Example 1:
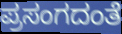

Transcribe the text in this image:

ಪ್ರಸಂಗದಂತೆ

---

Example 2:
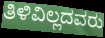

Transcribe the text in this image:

ತಿಳಿವಿಲ್ಲದವರು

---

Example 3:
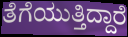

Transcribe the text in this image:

ತೆಗೆಯುತ್ತಿದ್ದಾರೆ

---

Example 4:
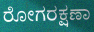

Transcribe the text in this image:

ರೋಗರಕ್ಷಣಾ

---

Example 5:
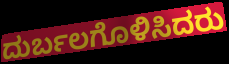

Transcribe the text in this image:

ದುರ್ಬಲಗೊಳಿಸಿದರು